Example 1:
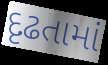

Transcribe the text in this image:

દૃઢતામાં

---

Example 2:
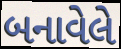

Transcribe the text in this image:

બનાવેલે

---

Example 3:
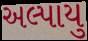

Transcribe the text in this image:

અલ્પાયુ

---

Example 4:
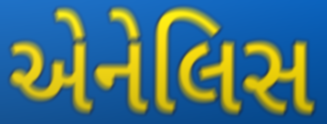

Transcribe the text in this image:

એનેલિસ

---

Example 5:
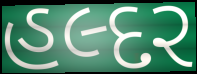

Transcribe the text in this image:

હલ્દર